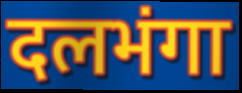
दलभंगा